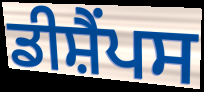
ਡੀਸ਼ੈਂਪਸ